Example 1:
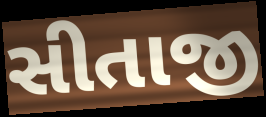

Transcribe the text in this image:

સીતાજી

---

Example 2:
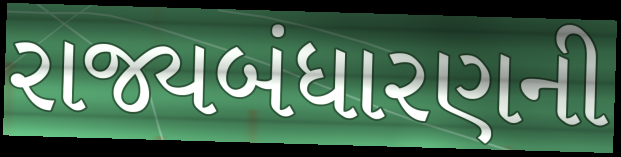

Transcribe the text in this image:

રાજ્યબંધારણની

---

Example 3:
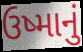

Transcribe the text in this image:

ઉષ્માનું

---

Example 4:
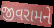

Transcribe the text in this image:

જીવરામને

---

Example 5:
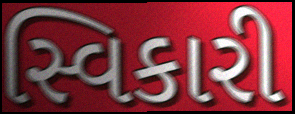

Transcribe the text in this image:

સ્વિકારી